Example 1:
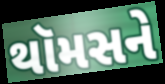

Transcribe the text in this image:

થૉમસને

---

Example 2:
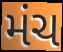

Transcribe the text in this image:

મંચ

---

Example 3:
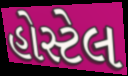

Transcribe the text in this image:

હોસ્ટેલ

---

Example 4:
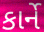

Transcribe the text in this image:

કાર્ને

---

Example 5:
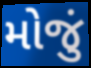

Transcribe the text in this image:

મોજું